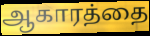
ஆகாரத்தை